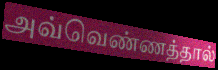
அவ்வெண்ணத்தால்